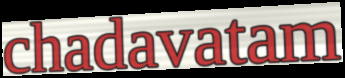
chadavatam